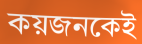
কয়জনকেই